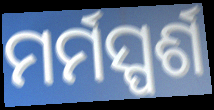
ମର୍ମସ୍ପର୍ଶ